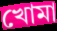
খোমা